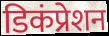
डिकंप्रेशन